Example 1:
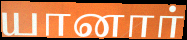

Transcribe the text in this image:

யானார்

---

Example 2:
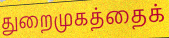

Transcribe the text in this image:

துறைமுகத்தைக்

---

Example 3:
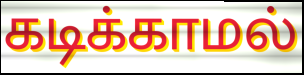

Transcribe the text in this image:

கடிக்காமல்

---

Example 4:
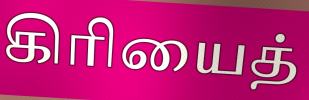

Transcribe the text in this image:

கிரியைத்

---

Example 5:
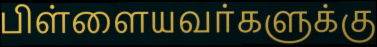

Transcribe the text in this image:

பிள்ளையவர்களுக்கு